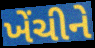
ખેંચીને